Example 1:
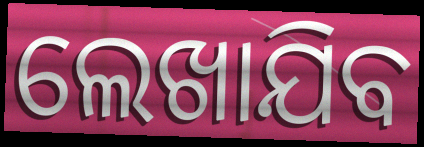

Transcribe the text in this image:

ଲେଖାଯିବ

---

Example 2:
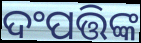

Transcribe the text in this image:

ଦଂପତ୍ତିଙ୍କ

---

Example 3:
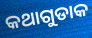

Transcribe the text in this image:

କଥାଗୁଡାକ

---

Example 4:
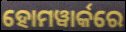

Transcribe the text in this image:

ହୋମୱାର୍କରେ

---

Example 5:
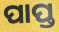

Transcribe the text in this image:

ପାପ୍ତ